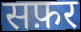
सफ़र